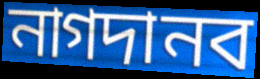
নাগদানব